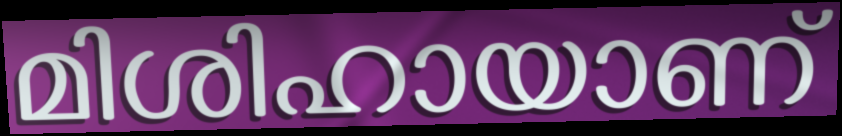
മിശിഹായാണ്